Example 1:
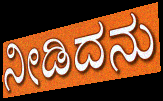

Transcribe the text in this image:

ನೀಡಿದನು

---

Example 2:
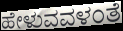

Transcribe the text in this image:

ಹೇಳುವವಳಂತೆ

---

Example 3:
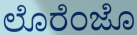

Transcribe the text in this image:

ಲೊರೆಂಜೊ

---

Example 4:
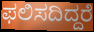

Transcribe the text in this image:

ಫಲಿಸದಿದ್ದರೆ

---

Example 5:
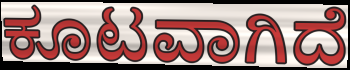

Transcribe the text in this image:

ಕೂಟವಾಗಿದೆ